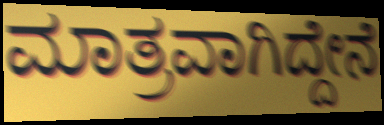
ಮಾತ್ರವಾಗಿದ್ದೇನೆ